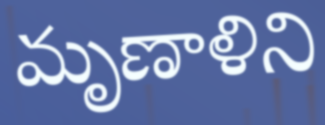
మృణాళిని